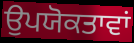
ਉਪਯੋਕਤਾਵਾਂ